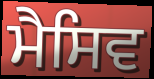
ਮੈਸਿਵ